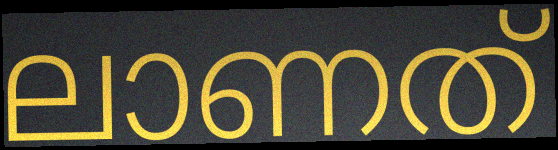
ലാണത്